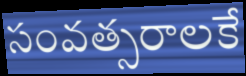
సంవత్సరాలకే